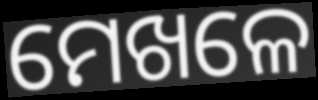
ମେଖଳେ